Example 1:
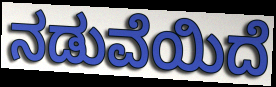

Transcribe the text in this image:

ನಡುವೆಯಿದೆ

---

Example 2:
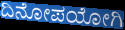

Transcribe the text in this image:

ದಿನೋಪಯೋಗಿ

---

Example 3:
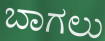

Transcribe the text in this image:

ಬಾಗಲು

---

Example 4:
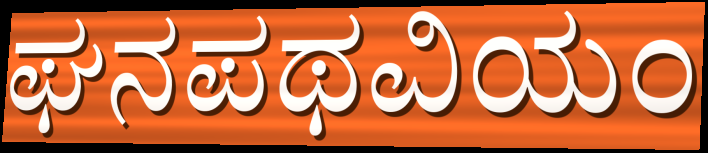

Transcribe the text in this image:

ಘನಪಥವಿಯಂ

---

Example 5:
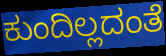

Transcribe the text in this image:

ಕುಂದಿಲ್ಲದಂತೆ